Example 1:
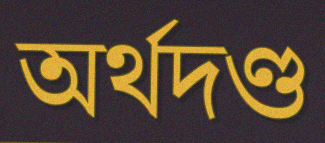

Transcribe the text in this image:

অর্থদণ্ড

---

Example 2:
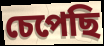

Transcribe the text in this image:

চেপেছি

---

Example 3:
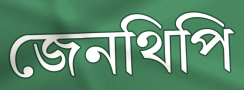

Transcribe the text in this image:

জেনথিপি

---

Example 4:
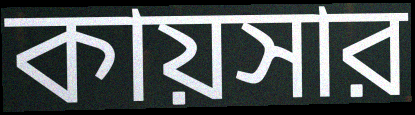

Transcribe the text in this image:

কায়সার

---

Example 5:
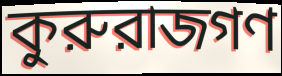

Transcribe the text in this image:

কুরুরাজগণ